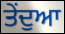
ਤੇਂਦੁਆ